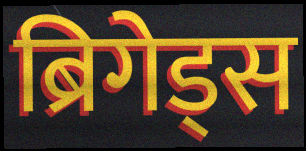
ब्रिगेड्स